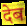
देब